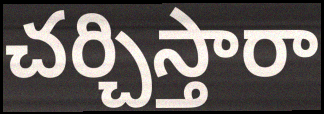
చర్చిస్తారా